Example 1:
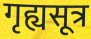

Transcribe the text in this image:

गृह्यसूत्र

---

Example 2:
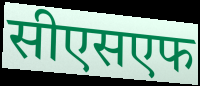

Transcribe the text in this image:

सीएसएफ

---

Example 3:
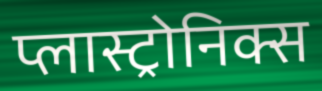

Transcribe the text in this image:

प्लास्ट्रोनिक्स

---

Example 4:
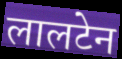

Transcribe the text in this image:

लालटेन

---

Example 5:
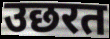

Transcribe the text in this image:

उछरत